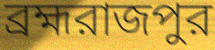
ব্রহ্মরাজপুর